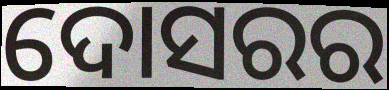
ଦୋସରର